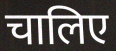
चालिए